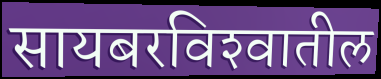
सायबरविश्वातील